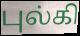
புல்கி